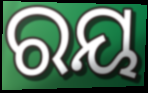
ରୟ